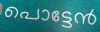
പൊട്ടേൻ